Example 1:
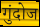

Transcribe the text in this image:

गुंदोज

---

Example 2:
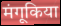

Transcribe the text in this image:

मंगूकिया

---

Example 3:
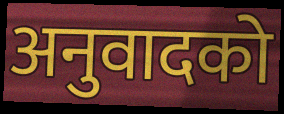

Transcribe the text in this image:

अनुवादको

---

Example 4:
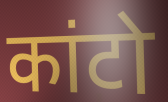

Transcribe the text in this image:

कांटो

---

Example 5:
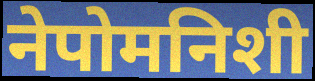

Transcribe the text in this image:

नेपोमनिशी